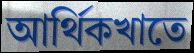
আর্থিকখাতে